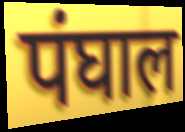
पंघाल